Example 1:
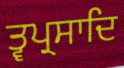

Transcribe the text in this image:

ਤ੍ਵਪ੍ਰਸਾਦਿ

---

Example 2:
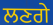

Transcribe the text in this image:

ਲਣਗੇ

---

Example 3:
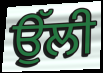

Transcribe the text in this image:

ਉੱਲੀ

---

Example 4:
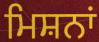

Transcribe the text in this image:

ਮਿਸ਼ਨਾਂ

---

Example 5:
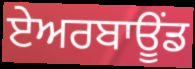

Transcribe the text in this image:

ਏਅਰਬਾਊਂਡ